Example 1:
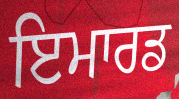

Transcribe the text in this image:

ਇਮਾਰਡ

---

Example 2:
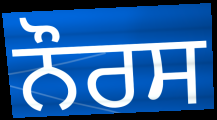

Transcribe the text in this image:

ਨੌਰਸ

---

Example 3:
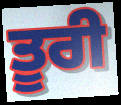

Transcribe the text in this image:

ਤੂਰੀ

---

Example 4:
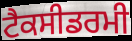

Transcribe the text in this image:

ਟੈਕਸੀਡਰਮੀ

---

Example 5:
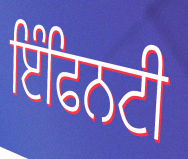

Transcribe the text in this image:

ਇੰਫਿਨਟੀ